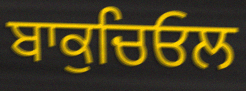
ਬਾਕੁਚਿਓਲ